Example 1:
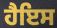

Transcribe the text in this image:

ਹੈਇਸ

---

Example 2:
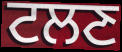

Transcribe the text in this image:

ਟਲਣ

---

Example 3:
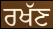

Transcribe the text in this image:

ਰਖੱਣ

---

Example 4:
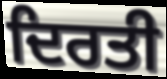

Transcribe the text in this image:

ਦਿਰਤੀ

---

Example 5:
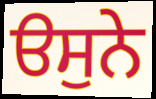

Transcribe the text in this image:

ੳਸੁਨੇ